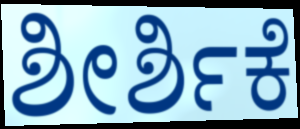
ಶೀರ್ಶಿಕೆ